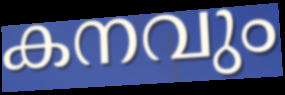
കനവും